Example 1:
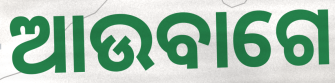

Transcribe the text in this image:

ଆଉବାଗେ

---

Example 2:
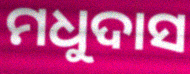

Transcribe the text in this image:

ମଧୁଦାସ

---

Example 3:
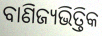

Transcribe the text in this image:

ବାଣିଜ୍ୟଭିତ୍ତିକ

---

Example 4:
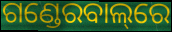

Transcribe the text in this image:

ଗଣ୍ଡେରବାଲ୍‌ରେ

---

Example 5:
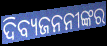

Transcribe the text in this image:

ଦିବ୍ୟଜନନୀଙ୍କର